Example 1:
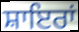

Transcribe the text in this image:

ਸ਼ਾਇਰਾਂ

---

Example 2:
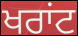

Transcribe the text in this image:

ਖਰਾਂਟ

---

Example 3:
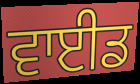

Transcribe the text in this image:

ਵਾਈਡ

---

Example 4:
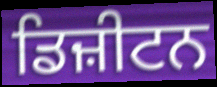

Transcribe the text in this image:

ਡਿਜ਼ੀਟਨ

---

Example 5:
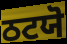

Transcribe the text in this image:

ਠਟਯੋ